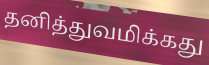
தனித்துவமிக்கது